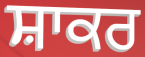
ਸ਼ਾਕਰ